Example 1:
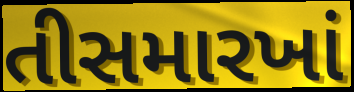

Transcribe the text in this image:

તીસમારખાં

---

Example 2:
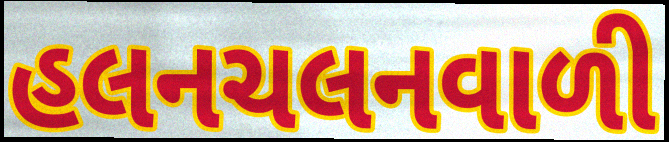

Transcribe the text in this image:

હલનચલનવાળી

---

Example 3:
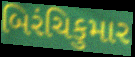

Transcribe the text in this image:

બિરંચિકુમાર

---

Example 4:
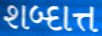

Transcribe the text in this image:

શબ્દાત્ત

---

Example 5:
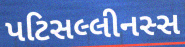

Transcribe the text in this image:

પટિસલ્લીનસ્સ